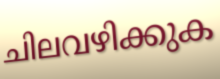
ചിലവഴിക്കുക